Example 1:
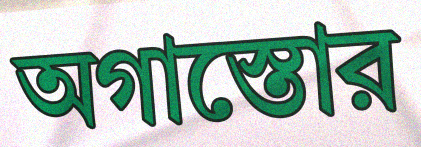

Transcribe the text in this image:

অগাস্তোর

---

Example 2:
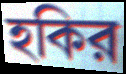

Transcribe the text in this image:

হকির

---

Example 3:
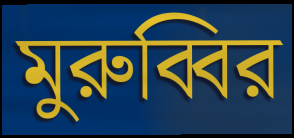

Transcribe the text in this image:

মুরুব্বির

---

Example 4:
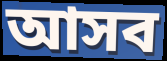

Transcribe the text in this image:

আসব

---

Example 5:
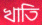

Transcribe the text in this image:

খাতি